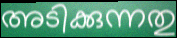
അടിക്കുന്നതു